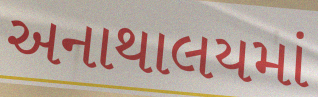
અનાથાલયમાં